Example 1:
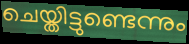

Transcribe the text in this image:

ചെയ്തിട്ടുണ്ടെന്നും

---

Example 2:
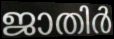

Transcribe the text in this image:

ജാതിർ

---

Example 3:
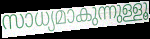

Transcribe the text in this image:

സാധ്യമാകുന്നുള്ളൂ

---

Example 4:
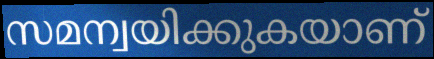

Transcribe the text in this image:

സമന്വയിക്കുകയാണ്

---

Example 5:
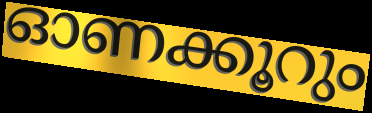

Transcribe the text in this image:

ഓണക്കൂറും